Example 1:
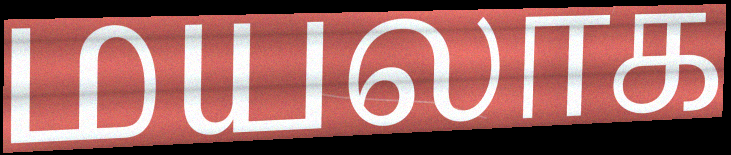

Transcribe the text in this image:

மயலாக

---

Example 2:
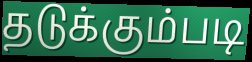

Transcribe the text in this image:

தடுக்கும்படி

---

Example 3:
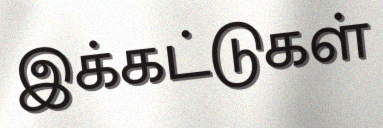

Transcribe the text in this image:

இக்கட்டுகள்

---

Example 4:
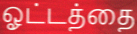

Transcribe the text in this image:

ஓட்டத்தை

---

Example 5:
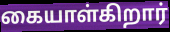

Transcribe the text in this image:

கையாள்கிறார்